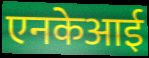
एनकेआई